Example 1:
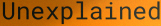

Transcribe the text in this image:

Unexplained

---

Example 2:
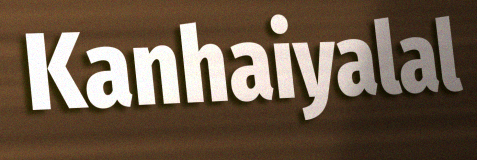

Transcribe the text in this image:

Kanhaiyalal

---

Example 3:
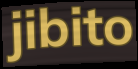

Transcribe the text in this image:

jibito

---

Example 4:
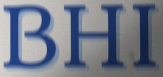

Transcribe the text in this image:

BHI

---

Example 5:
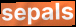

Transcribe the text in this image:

sepals